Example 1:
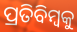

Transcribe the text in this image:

ପ୍ରତିବିମ୍ୱକୁ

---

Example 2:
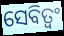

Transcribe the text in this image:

ସେବିତ୍ୱଂ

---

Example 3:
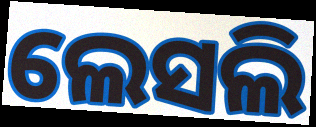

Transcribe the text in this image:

ଲେସଲି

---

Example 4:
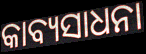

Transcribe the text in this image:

କାବ୍ୟସାଧନା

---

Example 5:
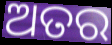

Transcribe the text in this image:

ଅତର